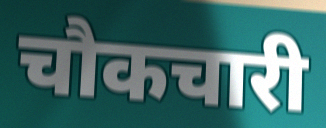
चौकचारी